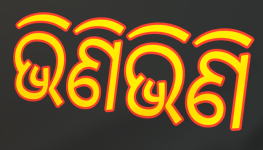
ଭିଣିଭିଣି